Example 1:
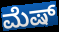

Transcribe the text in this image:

ಮೆಷ್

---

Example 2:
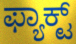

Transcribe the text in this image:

ಫ್ಯಾಕ್ಟ್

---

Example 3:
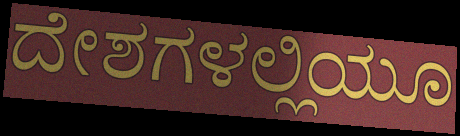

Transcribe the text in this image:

ದೇಶಗಳಲ್ಲಿಯೂ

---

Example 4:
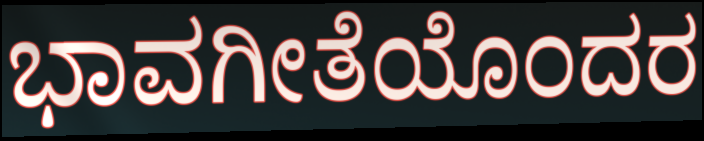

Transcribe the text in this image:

ಭಾವಗೀತೆಯೊಂದರ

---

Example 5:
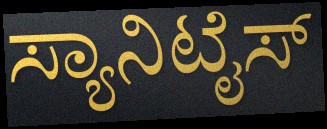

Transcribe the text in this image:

ಸ್ಯಾನಿಟೈಸ್